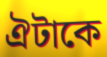
ঐটাকে